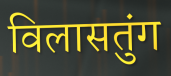
विलासतुंग